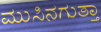
ಮುಸಿನಗುತ್ತಾ